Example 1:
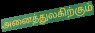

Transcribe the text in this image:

அனைத்துலகிற்கும்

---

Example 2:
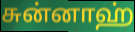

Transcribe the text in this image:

சுன்னாஹ்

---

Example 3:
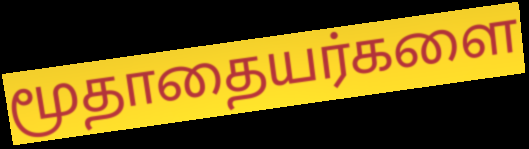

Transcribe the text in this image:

மூதாதையர்களை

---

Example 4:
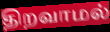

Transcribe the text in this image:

திறவாமல்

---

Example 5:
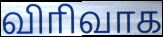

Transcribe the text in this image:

விரிவாக